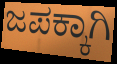
ಜಪಕ್ಕಾಗಿ